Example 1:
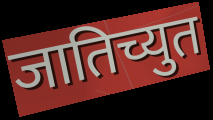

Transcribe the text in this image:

जातिच्युत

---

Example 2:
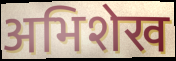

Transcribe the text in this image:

अभिशेख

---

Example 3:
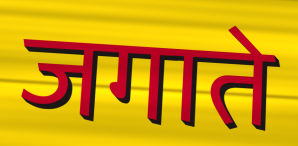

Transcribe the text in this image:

जगाते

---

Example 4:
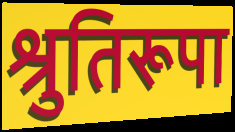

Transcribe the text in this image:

श्रुतिरूपा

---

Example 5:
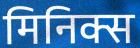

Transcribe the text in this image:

मिनिक्स